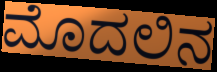
ಮೊದಲಿನ